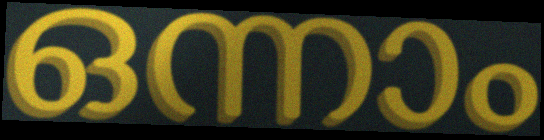
ഒന്നാം